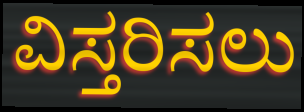
ವಿಸ್ತರಿಸಲು